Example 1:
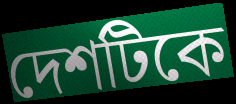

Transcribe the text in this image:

দেশটিকে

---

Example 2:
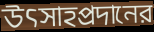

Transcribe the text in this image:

উৎসাহপ্রদানের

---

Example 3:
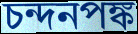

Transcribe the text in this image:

চন্দনপঙ্ক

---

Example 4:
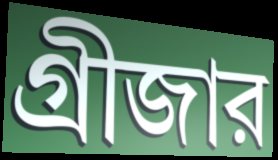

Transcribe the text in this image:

গ্রীজার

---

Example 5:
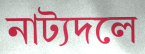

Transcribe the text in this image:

নাট্যদলে